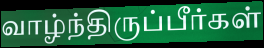
வாழ்ந்திருப்பீர்கள்